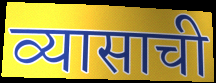
व्यासाची